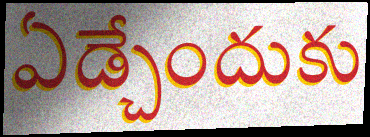
ఏడ్చేందుకు